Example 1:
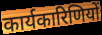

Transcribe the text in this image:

कार्यकारिणियों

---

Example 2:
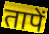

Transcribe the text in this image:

तापें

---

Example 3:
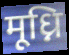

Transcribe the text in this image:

मूध्नि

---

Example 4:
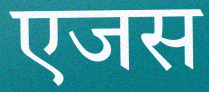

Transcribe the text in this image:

एजस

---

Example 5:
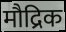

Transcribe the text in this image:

मौद्रिक